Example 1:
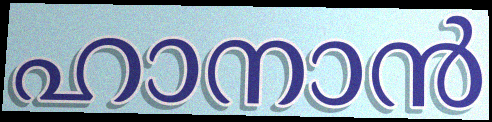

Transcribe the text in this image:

ഹാനാൻ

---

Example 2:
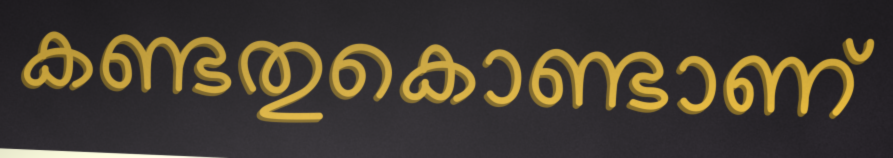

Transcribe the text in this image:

കണ്ടതുകൊണ്ടാണ്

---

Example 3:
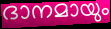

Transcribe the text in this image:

ദാനമായും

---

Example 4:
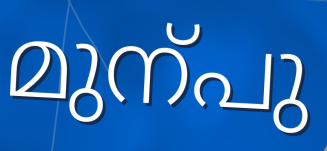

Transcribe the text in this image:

മുന്പു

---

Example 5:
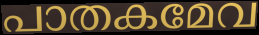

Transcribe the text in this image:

പാതകമേവ